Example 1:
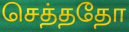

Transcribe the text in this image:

செத்ததோ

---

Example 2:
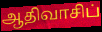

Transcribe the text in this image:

ஆதிவாசிப்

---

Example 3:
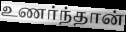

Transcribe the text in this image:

உணர்ந்தான்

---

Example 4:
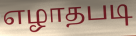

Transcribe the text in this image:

எழாதபடி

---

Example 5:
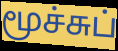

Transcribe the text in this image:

மூச்சுப்